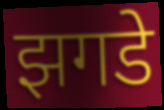
झगडे